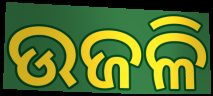
ଉଜଳି